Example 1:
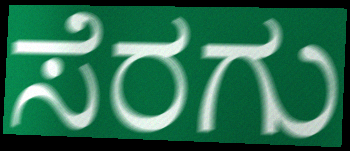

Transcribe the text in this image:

ಸೆರಗು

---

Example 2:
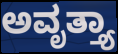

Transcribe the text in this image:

ಅವೃತ್ತ್ಯಾ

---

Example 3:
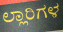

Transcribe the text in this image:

ಲ್ಲಾರಿಗಳ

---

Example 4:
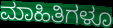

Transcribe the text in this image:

ಮಾಹಿತಿಗಳೂ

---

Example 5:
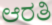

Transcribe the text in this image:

ಆರತಿ